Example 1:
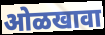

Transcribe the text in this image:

ओळखावा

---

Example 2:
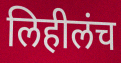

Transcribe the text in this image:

लिहीलंच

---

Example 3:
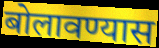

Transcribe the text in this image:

बोलावण्यास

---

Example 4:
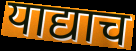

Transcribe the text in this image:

याद्याच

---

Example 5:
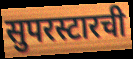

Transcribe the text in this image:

सुपरस्टारची